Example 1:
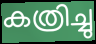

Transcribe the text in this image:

കത്രിച്ചു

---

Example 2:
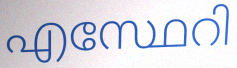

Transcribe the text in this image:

എസ്ഥേറി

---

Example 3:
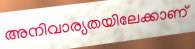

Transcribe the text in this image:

അനിവാര്യതയിലേക്കാണ്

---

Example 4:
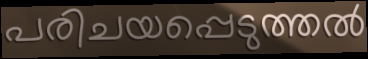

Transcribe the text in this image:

പരിചയപ്പെടുത്തൽ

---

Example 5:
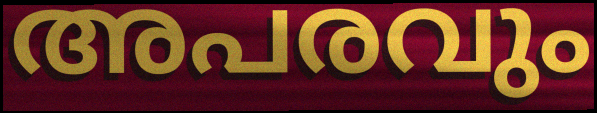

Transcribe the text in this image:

അപരവും